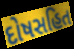
દોષસહિત